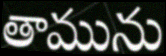
తామును